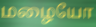
மழையோ